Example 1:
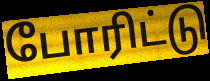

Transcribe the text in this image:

போரிட்டு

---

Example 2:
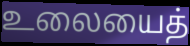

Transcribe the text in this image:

உலையைத்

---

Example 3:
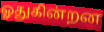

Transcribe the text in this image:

ஓதுகின்றன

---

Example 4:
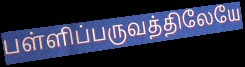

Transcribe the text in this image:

பள்ளிப்பருவத்திலேயே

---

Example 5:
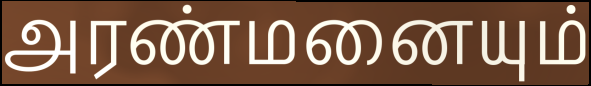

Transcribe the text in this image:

அரண்மனையும்